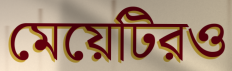
মেয়েটিরও